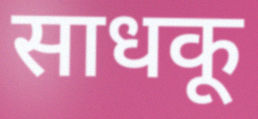
साधकू